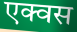
एक्वस